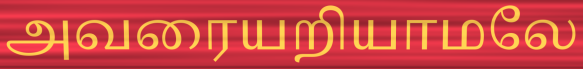
அவரையறியாமலே